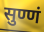
सुण्णं